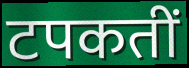
टपकतीं